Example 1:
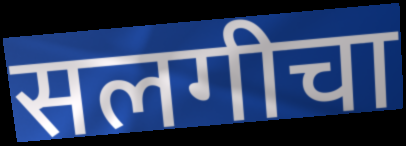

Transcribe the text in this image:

सलगीचा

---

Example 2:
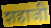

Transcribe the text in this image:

शहाजी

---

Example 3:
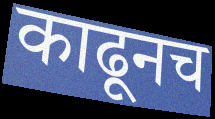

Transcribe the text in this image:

काढूनच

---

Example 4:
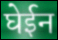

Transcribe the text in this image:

घेईन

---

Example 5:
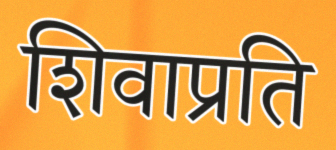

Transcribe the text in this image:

शिवाप्रति